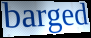
barged